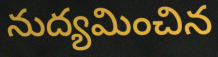
నుద్యమించిన